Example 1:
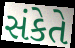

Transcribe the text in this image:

સંકેતે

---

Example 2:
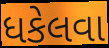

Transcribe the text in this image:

ધકેલવા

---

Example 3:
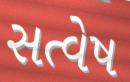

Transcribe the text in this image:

સત્વેષ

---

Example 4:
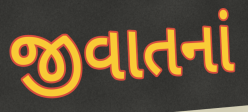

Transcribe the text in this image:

જીવાતનાં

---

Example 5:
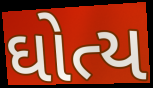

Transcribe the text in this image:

ઘોત્ય